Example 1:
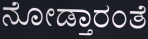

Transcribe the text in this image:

ನೋಡ್ತಾರಂತೆ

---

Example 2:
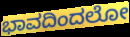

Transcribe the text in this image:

ಭಾವದಿಂದಲೋ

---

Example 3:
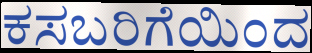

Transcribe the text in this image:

ಕಸಬರಿಗೆಯಿಂದ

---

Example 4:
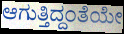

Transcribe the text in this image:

ಆಗುತ್ತಿದ್ದಂತೆಯೇ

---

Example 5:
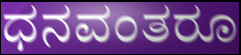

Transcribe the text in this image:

ಧನವಂತರೂ